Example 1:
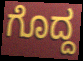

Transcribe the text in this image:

ಗೊದ್ದ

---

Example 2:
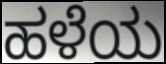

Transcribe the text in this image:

ಹಳೆಯ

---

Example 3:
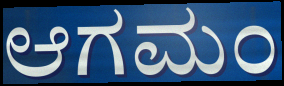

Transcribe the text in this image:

ಆಗಮಂ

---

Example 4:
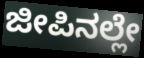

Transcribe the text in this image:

ಜೀಪಿನಲ್ಲೇ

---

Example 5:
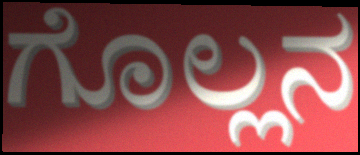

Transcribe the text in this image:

ಗೊಲ್ಲನ